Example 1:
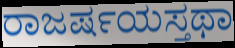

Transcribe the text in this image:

ರಾಜರ್ಷಯಸ್ತಥಾ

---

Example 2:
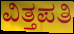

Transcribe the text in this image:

ವಿತ್ತಪತಿ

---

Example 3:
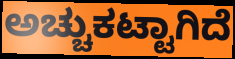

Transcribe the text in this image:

ಅಚ್ಚುಕಟ್ಟಾಗಿದೆ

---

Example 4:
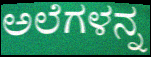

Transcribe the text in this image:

ಅಲೆಗಳನ್ನ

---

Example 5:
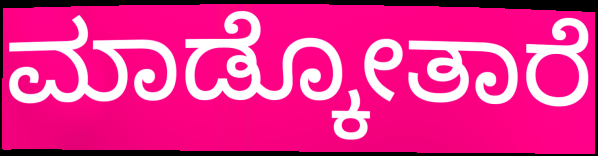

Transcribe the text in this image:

ಮಾಡ್ಕೋತಾರೆ